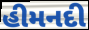
હીમનદી